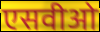
एसवीओ